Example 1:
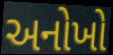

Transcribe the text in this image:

અનોખો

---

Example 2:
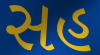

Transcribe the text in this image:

સહ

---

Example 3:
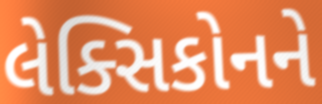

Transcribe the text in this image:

લેક્સિકોનને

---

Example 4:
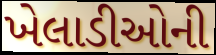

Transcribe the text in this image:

ખેલાડીઓની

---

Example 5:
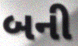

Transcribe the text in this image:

બની